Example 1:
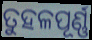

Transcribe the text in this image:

ତୁହଳପୂର୍ଣ୍ଣ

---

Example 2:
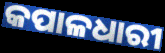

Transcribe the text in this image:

କପାଳଧାରୀ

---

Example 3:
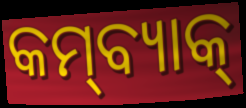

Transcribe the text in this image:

କମ୍‌ବ୍ୟାକ୍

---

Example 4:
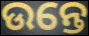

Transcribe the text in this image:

ଉନ୍ତେ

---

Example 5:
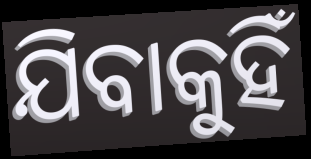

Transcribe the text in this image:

ଯିବାକୁହିଁ